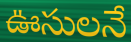
ఊసులనే